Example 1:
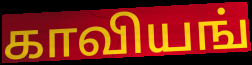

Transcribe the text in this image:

காவியங்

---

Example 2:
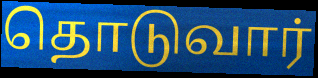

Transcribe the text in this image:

தொடுவார்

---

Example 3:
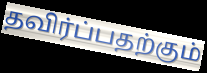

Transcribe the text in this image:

தவிர்ப்பதற்கும்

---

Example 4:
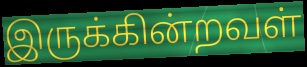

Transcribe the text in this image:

இருக்கின்றவள்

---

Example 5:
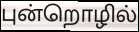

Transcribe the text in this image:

புன்றொழில்